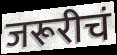
जरूरीचं